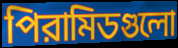
পিরামিডগুলো